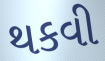
થકવી